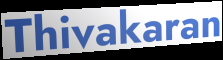
Thivakaran